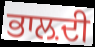
ਭਾਲ਼ਦੀ